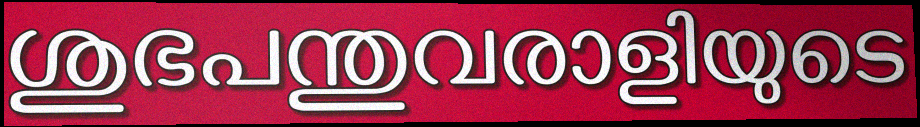
ശുഭപന്തുവരാളിയുടെ